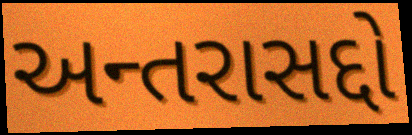
અન્તરાસદ્દો